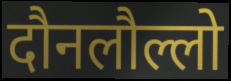
दौनलौल्लो